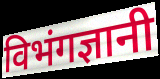
विभंगज्ञानी